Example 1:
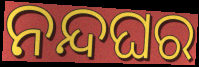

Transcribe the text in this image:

ନନ୍ଦଘର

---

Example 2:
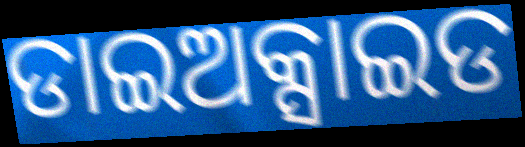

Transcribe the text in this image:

ଡାଇଅକ୍ସାଇଡ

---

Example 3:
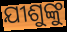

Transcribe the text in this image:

ଯୀଶୁଙ୍କୁ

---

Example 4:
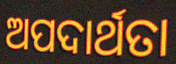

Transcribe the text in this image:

ଅପଦାର୍ଥତା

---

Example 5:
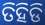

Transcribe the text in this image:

ତିହିଡି